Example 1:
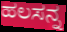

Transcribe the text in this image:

ಹಲಸನ್ನ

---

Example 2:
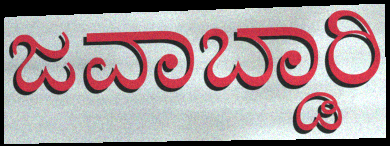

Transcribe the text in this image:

ಜವಾಬ್ಡಾರಿ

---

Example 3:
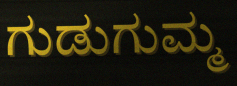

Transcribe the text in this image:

ಗುಡುಗುಮ್ಮ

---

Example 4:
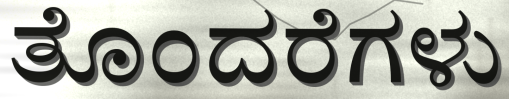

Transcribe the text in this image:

ತೊಂದರೆಗಳು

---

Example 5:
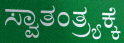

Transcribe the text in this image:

ಸ್ವಾತಂತ್ರ್ಯಕ್ಕೆ